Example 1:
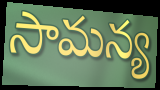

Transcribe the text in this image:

సామన్య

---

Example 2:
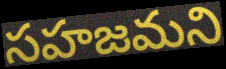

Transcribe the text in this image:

సహజమని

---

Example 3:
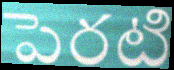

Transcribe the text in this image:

పెరటి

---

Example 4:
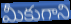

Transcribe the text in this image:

మీకుగాని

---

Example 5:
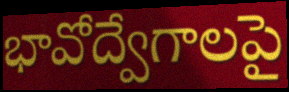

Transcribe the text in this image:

భావోద్వేగాలపై